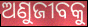
ଅଣୁଜୀବକୁ